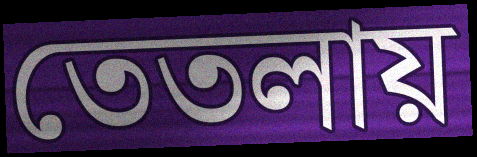
তেতলায়